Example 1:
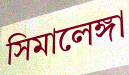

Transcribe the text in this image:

সিমালেঙ্গা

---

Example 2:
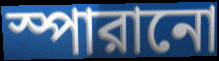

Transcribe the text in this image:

স্পারানো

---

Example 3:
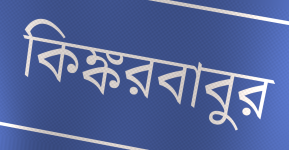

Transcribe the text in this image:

কিঙ্করবাবুর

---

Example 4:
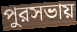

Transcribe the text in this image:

পুরসভায়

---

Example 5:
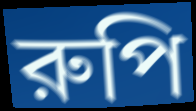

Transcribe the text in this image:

রুপি